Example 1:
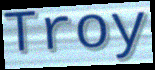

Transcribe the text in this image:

Troy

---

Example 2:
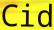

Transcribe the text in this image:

Cid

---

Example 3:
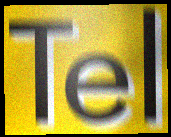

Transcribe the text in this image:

Tel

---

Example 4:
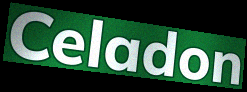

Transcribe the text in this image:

Celadon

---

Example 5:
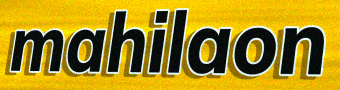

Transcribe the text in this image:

mahilaon